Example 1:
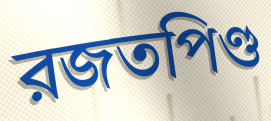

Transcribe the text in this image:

রজতপিণ্ড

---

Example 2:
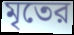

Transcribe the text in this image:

মৃতের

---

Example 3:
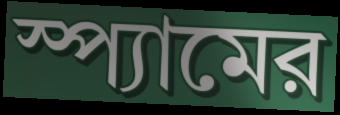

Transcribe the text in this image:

স্প্যামের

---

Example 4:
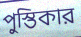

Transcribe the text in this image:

পুস্তিকার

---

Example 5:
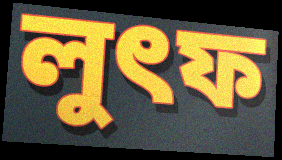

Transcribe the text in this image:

লুৎফ